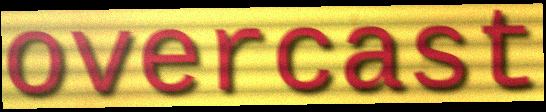
overcast